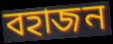
বহাজন